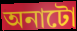
অনাটো